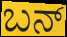
ಬನ್